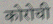
कोरोची